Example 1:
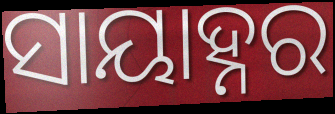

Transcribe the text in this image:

ସାୟାହ୍ନର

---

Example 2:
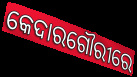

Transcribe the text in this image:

କେଦାରଗୌରୀରେ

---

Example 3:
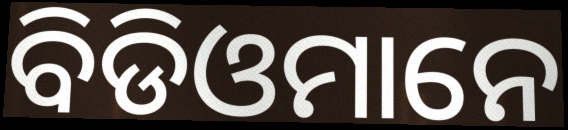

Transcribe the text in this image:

ବିଡିଓମାନେ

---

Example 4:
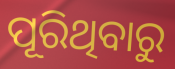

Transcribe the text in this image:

ପୂରିଥିବାରୁ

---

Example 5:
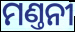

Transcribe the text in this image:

ମଣ୍ତନୀ